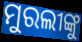
ମୁରଲୀଙ୍କୁ